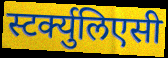
स्टर्क्युलिएसी